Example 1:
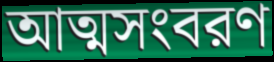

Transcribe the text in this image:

আত্মসংবরণ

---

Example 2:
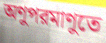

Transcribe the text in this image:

অণুপরমাণুতে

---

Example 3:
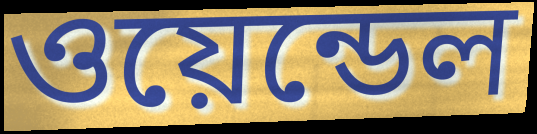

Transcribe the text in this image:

ওয়েন্ডেল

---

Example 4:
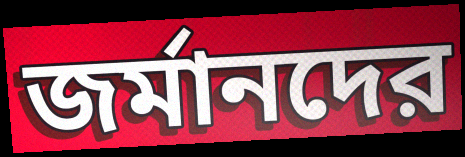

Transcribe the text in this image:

জর্মানদের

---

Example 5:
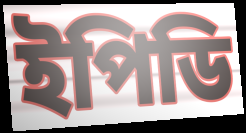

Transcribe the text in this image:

ইপিডি